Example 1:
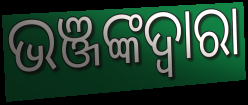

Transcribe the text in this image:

ଭଞ୍ଜଙ୍କଦ୍ୱାରା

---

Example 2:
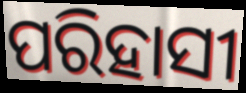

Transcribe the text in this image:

ପରିହାସୀ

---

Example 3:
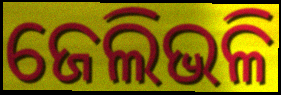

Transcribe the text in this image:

ଜେଲିଭଳି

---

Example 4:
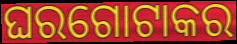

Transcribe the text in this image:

ଘରଗୋଟାକର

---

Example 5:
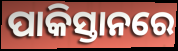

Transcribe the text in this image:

ପାକିସ୍ତାନରେ